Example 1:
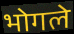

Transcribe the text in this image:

भोगले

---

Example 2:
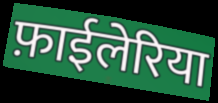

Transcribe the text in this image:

फ़ाईलेरिया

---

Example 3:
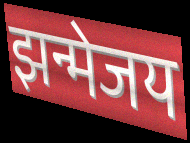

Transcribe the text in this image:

झन्मेजय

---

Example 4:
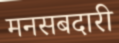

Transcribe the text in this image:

मनसबदारी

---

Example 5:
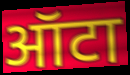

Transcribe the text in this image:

ऑटा